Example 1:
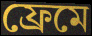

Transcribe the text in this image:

ফ্রেমে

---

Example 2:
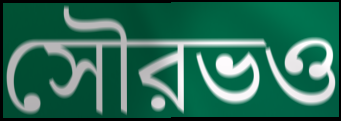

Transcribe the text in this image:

সৌরভও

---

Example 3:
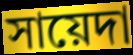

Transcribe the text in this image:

সায়েদা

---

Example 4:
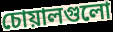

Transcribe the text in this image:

চোয়ালগুলো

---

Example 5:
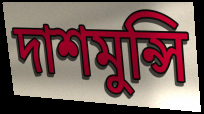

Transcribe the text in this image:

দাশমুন্সি